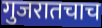
गुजरातचाच